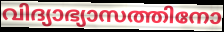
വിദ്യാഭ്യാസത്തിനോ